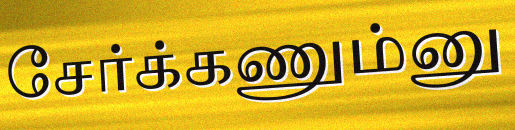
சேர்க்கணும்னு